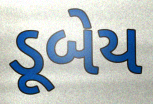
ડૂબેય